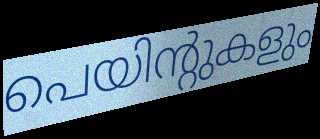
പെയിന്റുകളും